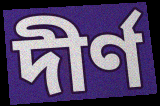
দীর্ণ